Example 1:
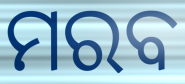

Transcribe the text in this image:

ମରବ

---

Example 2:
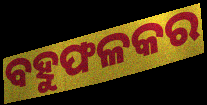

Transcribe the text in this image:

ବହୁଫଳକର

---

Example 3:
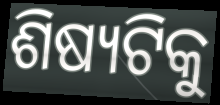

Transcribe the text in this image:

ଶିଷ୍ୟଟିକୁ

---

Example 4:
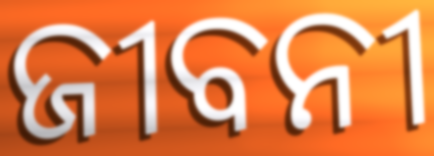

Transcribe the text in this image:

ଜୀବନୀ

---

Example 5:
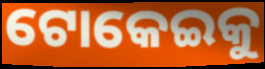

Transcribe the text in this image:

ଟୋକେଇକୁ